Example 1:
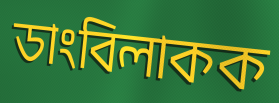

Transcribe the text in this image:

ডাংবিলাকক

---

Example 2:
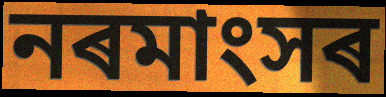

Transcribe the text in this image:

নৰমাংসৰ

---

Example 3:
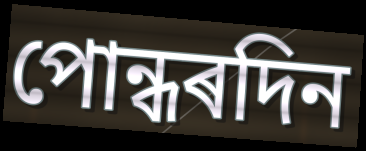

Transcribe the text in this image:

পোন্ধৰদিন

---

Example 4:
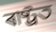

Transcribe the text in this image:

ৰাষ্ট্ৰত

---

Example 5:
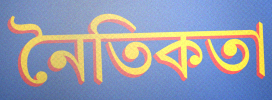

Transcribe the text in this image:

নৈতিকতা